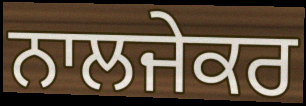
ਨਾਲਜੇਕਰ